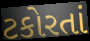
ટકોરતાં